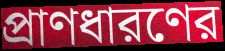
প্রাণধারণের